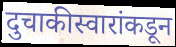
दुचाकीस्वारांकडून